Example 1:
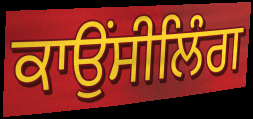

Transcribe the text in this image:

ਕਾਉਂਸੀਲਿੰਗ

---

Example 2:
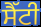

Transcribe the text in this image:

ਸੈੱਟੀ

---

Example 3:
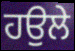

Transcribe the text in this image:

ਹਉਲੇ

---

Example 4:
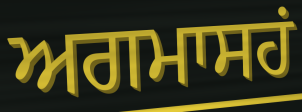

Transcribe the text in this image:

ਅਗਮਾਸਹਂ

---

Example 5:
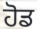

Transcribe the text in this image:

ਹੋਡ